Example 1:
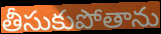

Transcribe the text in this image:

తీసుకుపోతాను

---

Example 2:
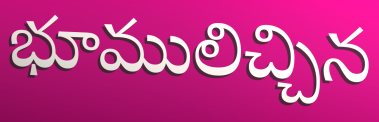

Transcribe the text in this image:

భూములిచ్చిన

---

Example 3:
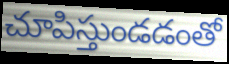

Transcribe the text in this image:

చూపిస్తుండడంతో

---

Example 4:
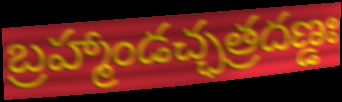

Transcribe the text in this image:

బ్రహ్మాండచ్ఛత్రదణ్డః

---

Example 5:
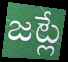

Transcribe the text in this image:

జట్లే